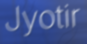
Jyotir